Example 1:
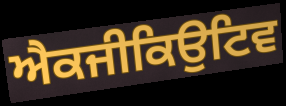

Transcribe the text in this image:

ਐਕਜੀਕਿਉਟਿਵ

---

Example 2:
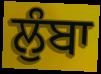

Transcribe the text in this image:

ਲੁੰਬਾ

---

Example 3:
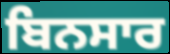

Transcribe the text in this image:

ਬਿਨਸਾਰ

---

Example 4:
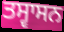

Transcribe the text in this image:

ਤਸ੍ਵਾਸਨ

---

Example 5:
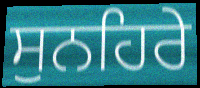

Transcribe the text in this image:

ਸੁਨਹਿਰੇ